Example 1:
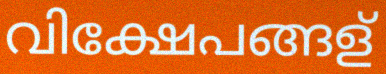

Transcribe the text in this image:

വിക്ഷേപങ്ങള്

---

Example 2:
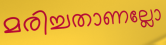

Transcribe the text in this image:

മരിച്ചതാണല്ലോ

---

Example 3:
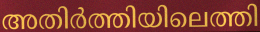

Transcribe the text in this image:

അതിർത്തിയിലെത്തി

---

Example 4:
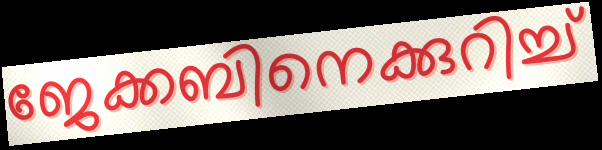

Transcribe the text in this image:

ജേക്കബിനെക്കുറിച്ച്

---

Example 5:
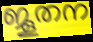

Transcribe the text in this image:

ജൂതന